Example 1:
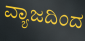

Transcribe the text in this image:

ವ್ಯಾಜದಿಂದ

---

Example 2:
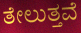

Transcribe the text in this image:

ತೇಲುತ್ತವೆ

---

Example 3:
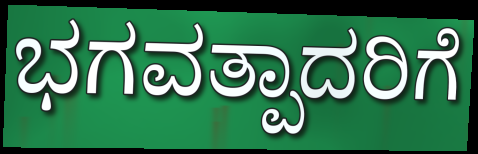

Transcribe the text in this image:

ಭಗವತ್ಪಾದರಿಗೆ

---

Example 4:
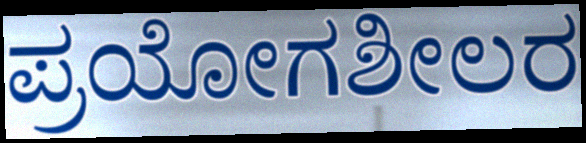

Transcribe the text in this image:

ಪ್ರಯೋಗಶೀಲರ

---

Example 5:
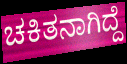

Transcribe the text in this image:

ಚಕಿತನಾಗಿದ್ದೆ